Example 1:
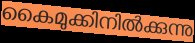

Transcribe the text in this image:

കൈമുക്കിനിൽക്കുന്നു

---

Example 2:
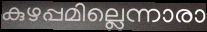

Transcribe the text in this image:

കുഴപ്പമില്ലെന്നാരാ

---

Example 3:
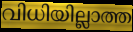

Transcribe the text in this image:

വിധിയില്ലാത്ത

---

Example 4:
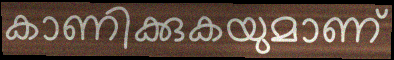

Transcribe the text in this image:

കാണിക്കുകയുമാണ്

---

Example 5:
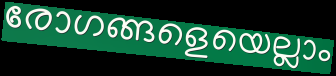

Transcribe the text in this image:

രോഗങ്ങളെയെല്ലാം